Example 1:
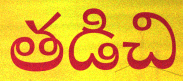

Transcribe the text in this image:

తడిచి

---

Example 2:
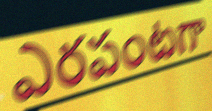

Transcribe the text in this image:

ఎరపంటగా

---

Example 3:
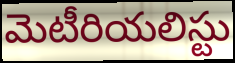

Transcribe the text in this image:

మెటీరియలిస్టు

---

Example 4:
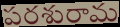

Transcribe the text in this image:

పరశురామ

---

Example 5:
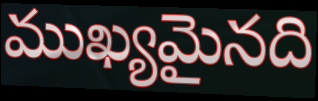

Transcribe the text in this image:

ముఖ్యమైనది